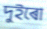
দুইৰো